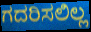
ಗದರಿಸಲಿಲ್ಲ